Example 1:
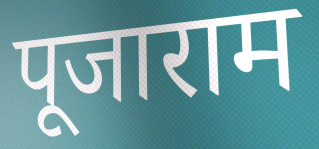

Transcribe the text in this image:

पूजाराम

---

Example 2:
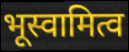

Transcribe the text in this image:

भूस्वामित्व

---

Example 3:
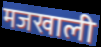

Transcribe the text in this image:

मजखाली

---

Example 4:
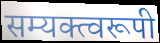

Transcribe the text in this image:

सम्यक्त्वरूपी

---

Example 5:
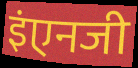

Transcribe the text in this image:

इंएनजी